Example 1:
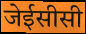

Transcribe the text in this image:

जेईसीसी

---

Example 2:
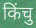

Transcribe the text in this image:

किंचु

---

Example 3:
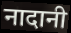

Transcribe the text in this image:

नादानी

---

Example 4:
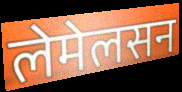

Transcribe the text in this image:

लेमेलसन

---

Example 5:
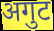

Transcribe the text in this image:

अगुट